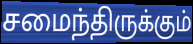
சமைந்திருக்கும்